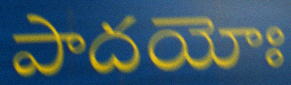
పాదయోః